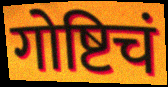
गोष्टिचं